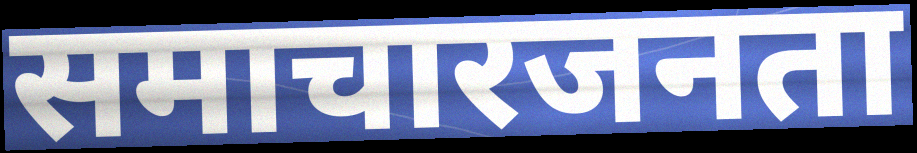
समाचारजनता